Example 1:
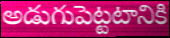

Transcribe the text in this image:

అడుగుపెట్టటానికి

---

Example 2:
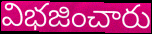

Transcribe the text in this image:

విభజించారు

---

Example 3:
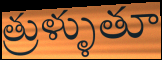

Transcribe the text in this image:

త్రుళ్ళుతూ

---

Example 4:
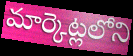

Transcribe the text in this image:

మార్కెట్లలోని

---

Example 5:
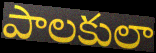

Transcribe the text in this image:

పాలకులా